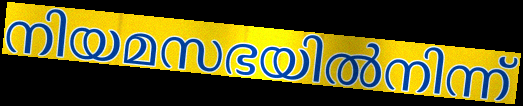
നിയമസഭയിൽനിന്ന്